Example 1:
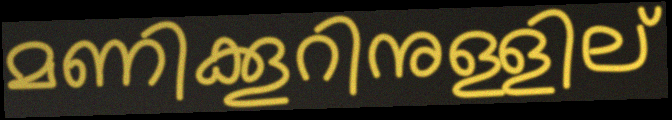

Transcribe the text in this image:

മണിക്കൂറിനുള്ളില്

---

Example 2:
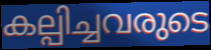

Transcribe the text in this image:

കല്പിച്ചവരുടെ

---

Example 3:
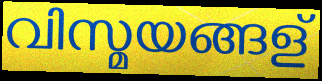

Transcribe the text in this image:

വിസ്മയങ്ങള്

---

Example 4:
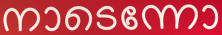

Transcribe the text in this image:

നാടെന്നോ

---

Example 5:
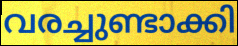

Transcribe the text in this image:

വരച്ചുണ്ടാക്കി